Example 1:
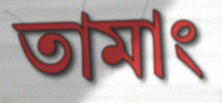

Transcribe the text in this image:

তামাং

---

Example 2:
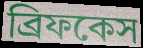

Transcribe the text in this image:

ব্রিফকেস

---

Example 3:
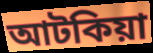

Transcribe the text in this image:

আটকিয়া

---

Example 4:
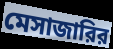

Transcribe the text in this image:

মেসাজারির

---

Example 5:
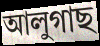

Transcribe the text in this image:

আলুগাছ